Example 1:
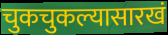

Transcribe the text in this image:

चुकचुकल्यासारखं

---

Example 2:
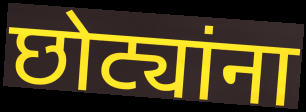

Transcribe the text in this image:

छोट्यांना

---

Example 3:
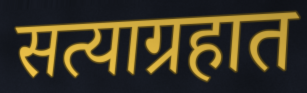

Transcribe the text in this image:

सत्याग्रहात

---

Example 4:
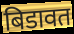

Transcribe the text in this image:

बिडावत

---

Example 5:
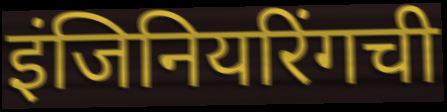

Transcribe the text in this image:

इंजिनियरिंगची